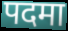
पदमा